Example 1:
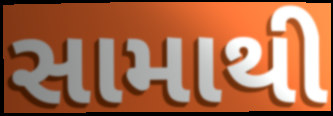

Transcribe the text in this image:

સામાથી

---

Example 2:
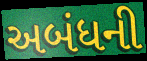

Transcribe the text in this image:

અબંધની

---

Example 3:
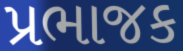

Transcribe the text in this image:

પ્રભાજક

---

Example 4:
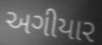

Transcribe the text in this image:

અગીયાર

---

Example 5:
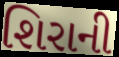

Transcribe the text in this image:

શિરાની